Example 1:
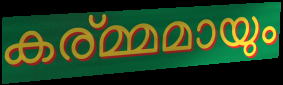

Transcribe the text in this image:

കര്മ്മമായും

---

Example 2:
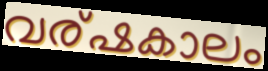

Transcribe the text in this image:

വര്ഷകാലം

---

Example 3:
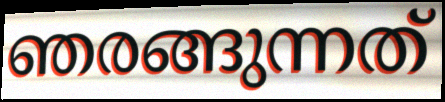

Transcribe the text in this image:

ഞരങ്ങുന്നത്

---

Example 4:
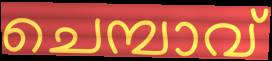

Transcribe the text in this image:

ചെമ്പാവ്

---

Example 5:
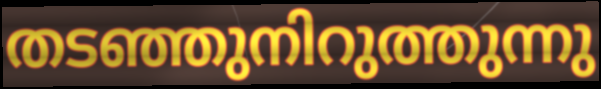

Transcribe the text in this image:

തടഞ്ഞുനിറുത്തുന്നു